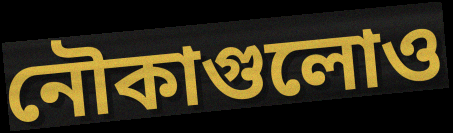
নৌকাগুলোও